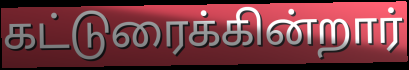
கட்டுரைக்கின்றார்